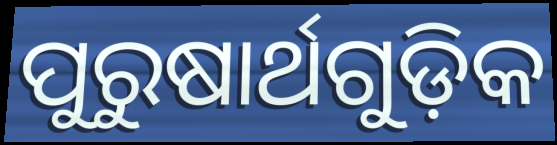
ପୁରୁଷାର୍ଥଗୁଡ଼ିକ